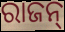
ରାଜନ୍